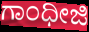
ಗಾಂಧೀಜಿ